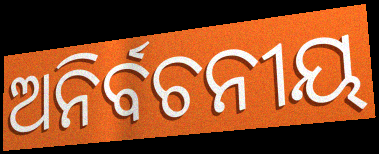
ଅନିର୍ବଚନୀୟ